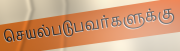
செயல்படுபவர்களுக்கு